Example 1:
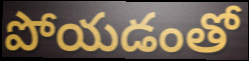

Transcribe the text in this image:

పోయడంతో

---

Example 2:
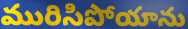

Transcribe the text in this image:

మురిసిపోయాను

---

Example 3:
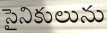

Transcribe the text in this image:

సైనికులును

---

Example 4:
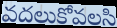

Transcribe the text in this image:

వదలుకోవలసి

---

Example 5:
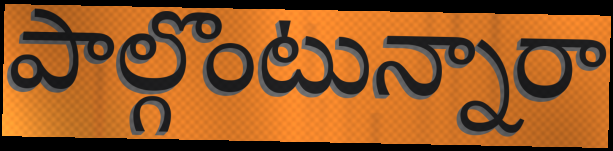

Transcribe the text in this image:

పాల్గొంటున్నారా